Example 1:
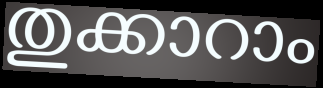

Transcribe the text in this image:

തുക്കാറാം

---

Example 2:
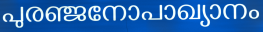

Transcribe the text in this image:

പുരഞ്ജനോപാഖ്യാനം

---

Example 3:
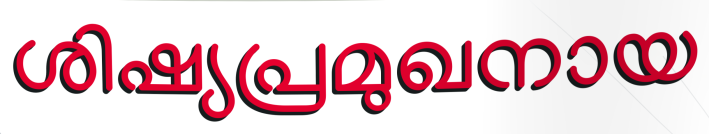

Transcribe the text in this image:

ശിഷ്യപ്രമുഖനായ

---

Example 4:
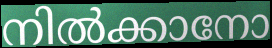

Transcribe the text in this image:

നിൽക്കാനോ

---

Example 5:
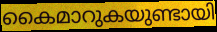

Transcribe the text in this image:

കൈമാറുകയുണ്ടായി